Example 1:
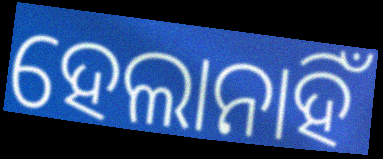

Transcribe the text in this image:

ହେଲାନାହିଁ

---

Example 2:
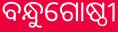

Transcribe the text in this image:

ବନ୍ଧୁଗୋଷ୍ଠୀ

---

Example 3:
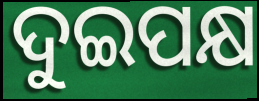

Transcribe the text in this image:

ଦୁଇପକ୍ଷ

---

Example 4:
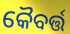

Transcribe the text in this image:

କୈବର୍ତ୍ତ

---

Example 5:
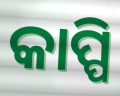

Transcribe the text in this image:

କାପ୍ପି